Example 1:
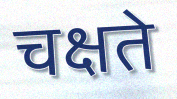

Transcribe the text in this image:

चक्षते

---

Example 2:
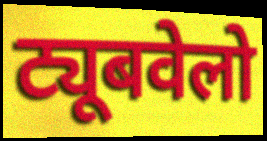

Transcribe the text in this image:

ट्यूबवेलो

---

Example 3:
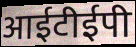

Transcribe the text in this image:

आईटीईपी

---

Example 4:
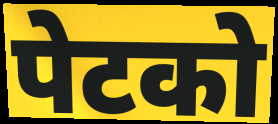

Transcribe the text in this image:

पेटको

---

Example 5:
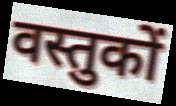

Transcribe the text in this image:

वस्तुकों